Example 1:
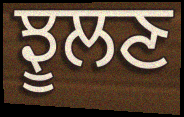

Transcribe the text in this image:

ਝੂਲਣ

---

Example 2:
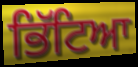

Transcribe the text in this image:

ਭਿੱਟਿਆ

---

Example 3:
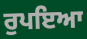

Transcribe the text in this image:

ਰੁਪਇਆ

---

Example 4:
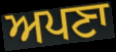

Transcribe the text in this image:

ਅਪਣਾ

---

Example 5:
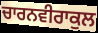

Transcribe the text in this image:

ਚਾਰਨਵੀਰਾਕੁਲ